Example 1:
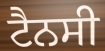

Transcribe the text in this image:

ਟੈਨਸੀ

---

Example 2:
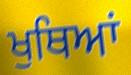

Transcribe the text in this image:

ਖੁਥਿਆਂ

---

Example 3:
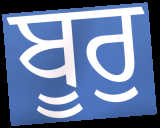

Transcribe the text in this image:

ਬੂਰੁ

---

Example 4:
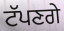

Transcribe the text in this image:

ਟੱਪਣਗੇ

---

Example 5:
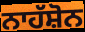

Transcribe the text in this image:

ਨਾਹੱਸ਼ੋਨ